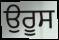
ਉਰੂਸ